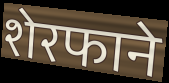
शेरफाने